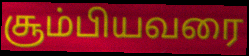
சூம்பியவரை